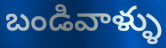
బండివాళ్ళు